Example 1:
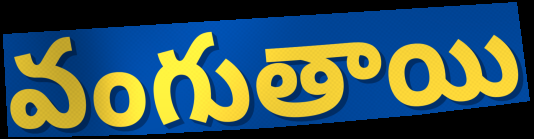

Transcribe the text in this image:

వంగుతాయి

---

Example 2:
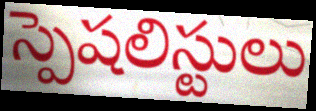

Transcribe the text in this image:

స్పెషలిస్టులు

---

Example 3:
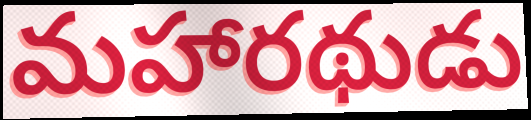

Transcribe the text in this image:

మహారథుడు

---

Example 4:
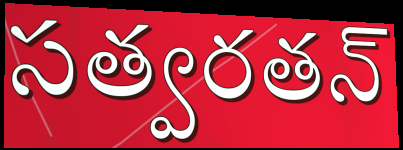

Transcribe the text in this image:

సత్వరతన్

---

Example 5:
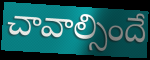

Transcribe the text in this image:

చావాల్సిందే